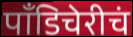
पाँडिचेरीचं